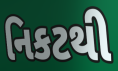
નિકટથી